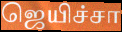
ஜெயிச்சா